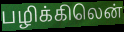
பழிக்கிலென்